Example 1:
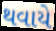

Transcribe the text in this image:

થવાયે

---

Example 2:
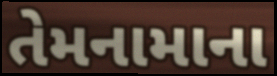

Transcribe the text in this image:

તેમનામાના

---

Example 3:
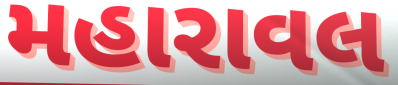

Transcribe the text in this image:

મહારાવલ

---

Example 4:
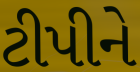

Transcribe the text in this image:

ટીપીને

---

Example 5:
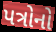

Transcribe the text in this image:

પત્રોનો